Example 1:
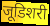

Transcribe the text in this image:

जूडिशरी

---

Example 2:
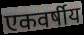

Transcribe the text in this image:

एकवर्षीय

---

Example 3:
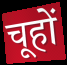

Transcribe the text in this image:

चूहों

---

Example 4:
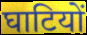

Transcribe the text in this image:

घाटियों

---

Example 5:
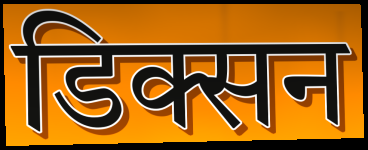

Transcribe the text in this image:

डिक्सन